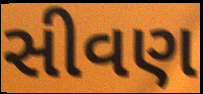
સીવણ